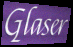
Glaser